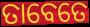
ତାବେତେ